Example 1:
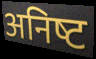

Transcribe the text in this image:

अनिष्‍ट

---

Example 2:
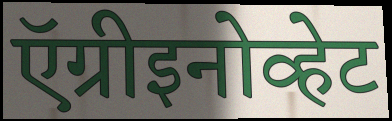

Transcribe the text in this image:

ऍग्रीइनोव्हेट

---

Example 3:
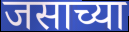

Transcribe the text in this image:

जसाच्या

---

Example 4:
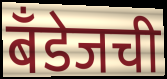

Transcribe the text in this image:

बँडेजची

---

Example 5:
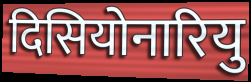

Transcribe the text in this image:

दिसियोनारियु